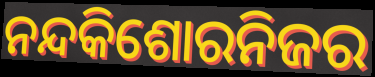
ନନ୍ଦକିଶୋରନିଜର